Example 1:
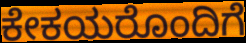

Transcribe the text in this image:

ಕೇಕಯರೊಂದಿಗೆ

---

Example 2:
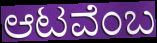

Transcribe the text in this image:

ಆಟವೆಂಬ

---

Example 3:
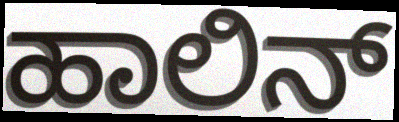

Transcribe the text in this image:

ಹಾಲಿನ್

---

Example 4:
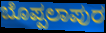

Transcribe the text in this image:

ಬೊಪ್ಪಲಾಪುರ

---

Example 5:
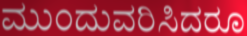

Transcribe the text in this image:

ಮುಂದುವರಿಸಿದರೂ